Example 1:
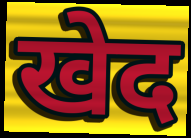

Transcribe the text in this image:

खेद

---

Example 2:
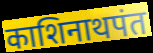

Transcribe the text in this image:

काशिनाथपंत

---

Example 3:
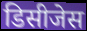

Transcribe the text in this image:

डिसीजेस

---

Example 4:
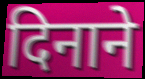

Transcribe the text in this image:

दिनाने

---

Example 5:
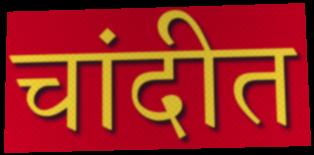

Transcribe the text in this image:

चांदीत